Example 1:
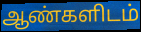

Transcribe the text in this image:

ஆண்களிடம்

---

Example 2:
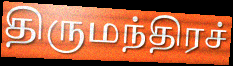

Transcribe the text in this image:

திருமந்திரச்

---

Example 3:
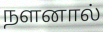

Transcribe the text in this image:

நளனால்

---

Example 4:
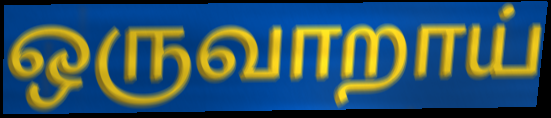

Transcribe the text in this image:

ஒருவாறாய்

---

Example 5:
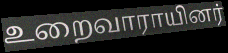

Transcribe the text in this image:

உறைவாராயினர்